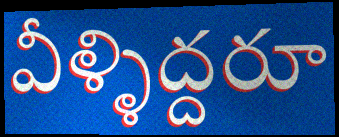
వీళ్ళిద్దరూ